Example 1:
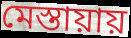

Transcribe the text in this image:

মেস্তায়ায়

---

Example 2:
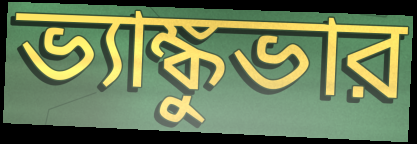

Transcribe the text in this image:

ভ্যাঙ্কুভার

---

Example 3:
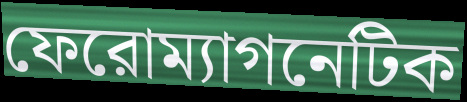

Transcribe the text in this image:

ফেরোম্যাগনেটিক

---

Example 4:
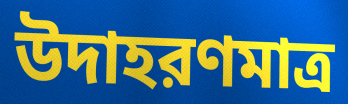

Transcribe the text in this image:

উদাহরণমাত্র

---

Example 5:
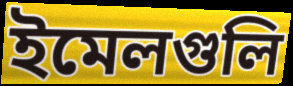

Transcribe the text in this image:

ইমেলগুলি